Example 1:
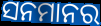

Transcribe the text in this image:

ସନମାନର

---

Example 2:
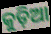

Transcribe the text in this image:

କୁଡ଼ିଆ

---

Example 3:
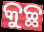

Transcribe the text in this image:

କୁଚ୍ଛ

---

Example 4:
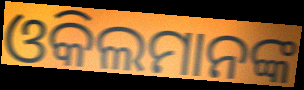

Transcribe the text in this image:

ଓକିଲମାନଙ୍କ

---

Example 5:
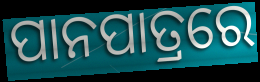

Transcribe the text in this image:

ପାନପାତ୍ରରେ